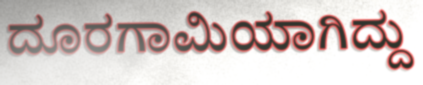
ದೂರಗಾಮಿಯಾಗಿದ್ದು